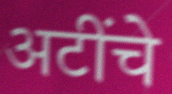
अटींचे